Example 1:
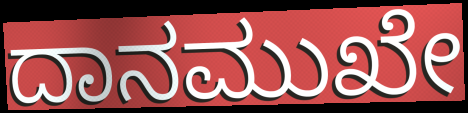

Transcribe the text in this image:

ದಾನಮುಖೇ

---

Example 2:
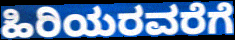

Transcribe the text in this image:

ಹಿರಿಯರವರೆಗೆ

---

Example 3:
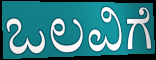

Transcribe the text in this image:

ಒಲವಿಗೆ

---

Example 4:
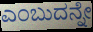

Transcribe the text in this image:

ಎಂಬುದನ್ನೇ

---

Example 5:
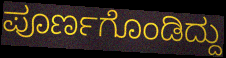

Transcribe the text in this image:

ಪೂರ್ಣಗೊಂಡಿದ್ದು